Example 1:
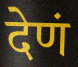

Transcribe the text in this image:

देणं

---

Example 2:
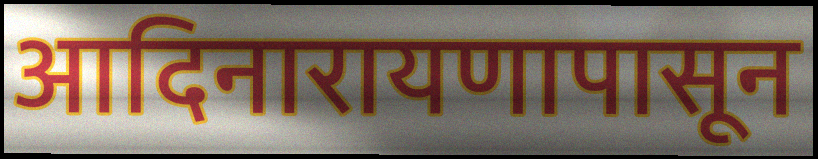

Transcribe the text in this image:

आदिनारायणापासून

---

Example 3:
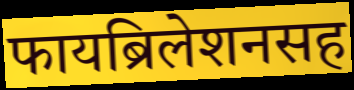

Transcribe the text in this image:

फायब्रिलेशनसह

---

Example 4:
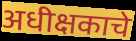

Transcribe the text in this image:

अधीक्षकाचे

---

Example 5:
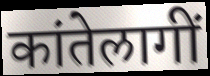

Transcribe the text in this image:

कांतेलागीं